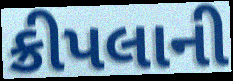
ક્રીપલાની